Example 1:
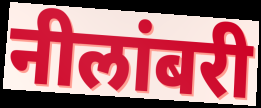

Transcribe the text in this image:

नीलांबरी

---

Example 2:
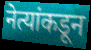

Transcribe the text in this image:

नेत्यांकडून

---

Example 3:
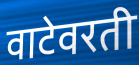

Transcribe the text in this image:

वाटेवरती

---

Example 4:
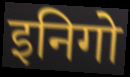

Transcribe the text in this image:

इनिगो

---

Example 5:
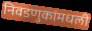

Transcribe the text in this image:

निवडणुकांमधली